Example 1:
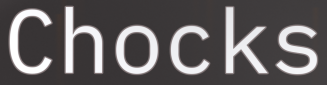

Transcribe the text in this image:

Chocks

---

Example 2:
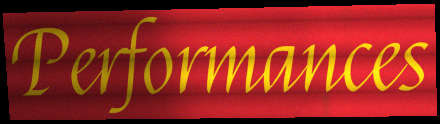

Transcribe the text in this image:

Performances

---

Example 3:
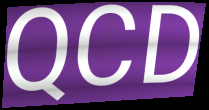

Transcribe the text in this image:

QCD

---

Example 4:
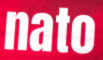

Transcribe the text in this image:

nato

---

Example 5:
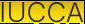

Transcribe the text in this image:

IUCCA